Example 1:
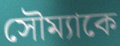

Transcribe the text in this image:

সৌম্যাকে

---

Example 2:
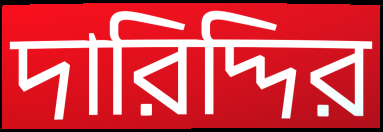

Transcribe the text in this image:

দারিদ্দির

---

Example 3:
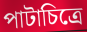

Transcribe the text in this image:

পাটাচিত্রে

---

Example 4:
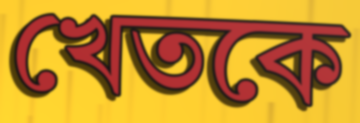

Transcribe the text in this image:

খেতকে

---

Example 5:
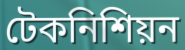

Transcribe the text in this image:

টেকনিশিয়ন